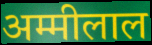
अम्मीलाल